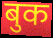
बुक